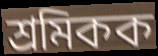
শ্ৰমিকক